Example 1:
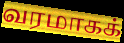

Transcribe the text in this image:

வரமாகக்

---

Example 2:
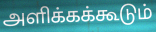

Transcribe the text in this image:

அளிக்கக்கூடும்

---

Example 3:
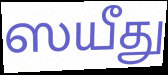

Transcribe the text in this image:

ஸயீது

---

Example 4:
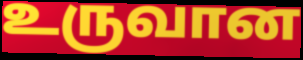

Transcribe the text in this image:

உருவான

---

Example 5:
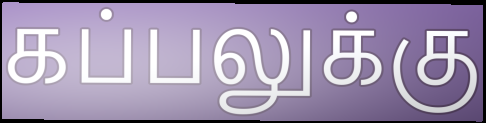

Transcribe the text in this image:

கப்பலுக்கு